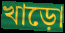
খাড়ো